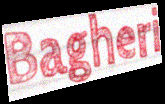
Bagheri